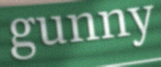
gunny